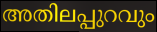
അതിലപ്പുറവും